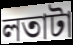
লতাটা